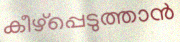
കീഴ്പ്പെടുത്താൻ